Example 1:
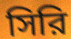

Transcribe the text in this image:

সিরি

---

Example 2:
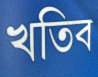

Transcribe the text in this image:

খতিব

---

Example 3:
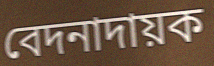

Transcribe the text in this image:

বেদনাদায়ক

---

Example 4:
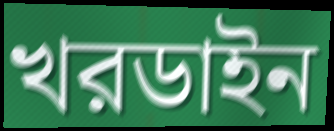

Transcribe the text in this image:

খরডাইন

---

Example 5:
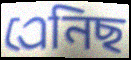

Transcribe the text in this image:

এেনিছ